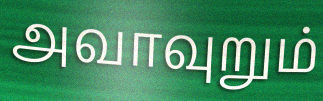
அவாவுறும்